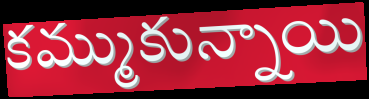
కమ్ముకున్నాయి